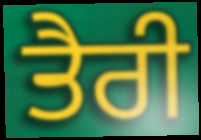
ਤੈਰੀ